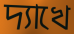
দ্যাখে